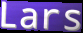
Lars